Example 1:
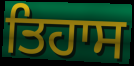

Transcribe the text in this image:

ਤਿਹਾਸ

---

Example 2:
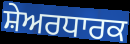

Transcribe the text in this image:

ਸ਼ੇਅਰਧਾਰਕ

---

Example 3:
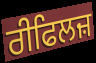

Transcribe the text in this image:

ਰੀਫਿਲਜ਼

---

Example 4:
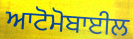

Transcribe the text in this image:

ਆਟੋਮੋਬਾਈਲ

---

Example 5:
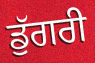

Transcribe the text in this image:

ਡੁੱਗਰੀ